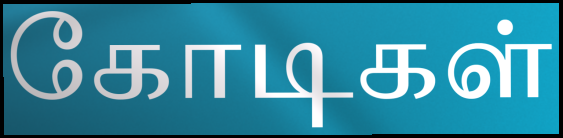
கோடிகள்